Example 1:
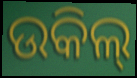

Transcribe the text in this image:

ଉକିଲ୍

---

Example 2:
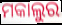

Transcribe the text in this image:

ମକାଲୁର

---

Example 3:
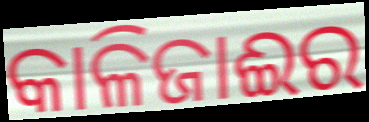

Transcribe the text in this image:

କାଳିଜାଈର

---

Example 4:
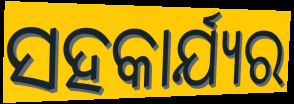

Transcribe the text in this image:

ସହକାର୍ଯ୍ୟର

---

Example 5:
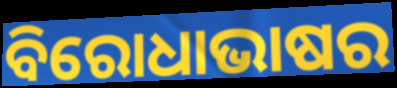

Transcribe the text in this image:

ବିରୋଧାଭାଷର